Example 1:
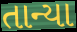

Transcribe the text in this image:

તાન્યા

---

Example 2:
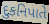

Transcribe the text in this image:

દુકનિપાતે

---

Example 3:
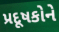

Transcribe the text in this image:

પ્રદૂષકોને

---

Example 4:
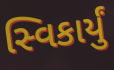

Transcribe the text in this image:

સ્વિકાર્યું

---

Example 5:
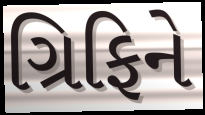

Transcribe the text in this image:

ગ્રિફિને